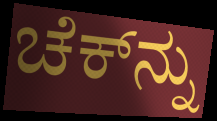
ಚೆಕ್‌ನ್ನು